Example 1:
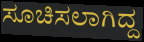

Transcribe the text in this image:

ಸೂಚಿಸಲಾಗಿದ್ದ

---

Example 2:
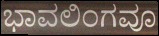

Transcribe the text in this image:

ಭಾವಲಿಂಗವೂ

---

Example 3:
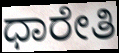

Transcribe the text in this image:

ಧಾರೇತಿ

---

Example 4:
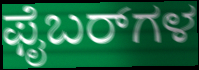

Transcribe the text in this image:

ಫೈಬರ್‌ಗಳ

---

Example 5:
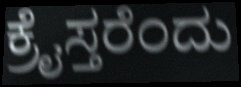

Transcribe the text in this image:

ಕ್ರೈಸ್ತರೆಂದು